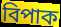
বিপাক